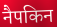
नैपकिन